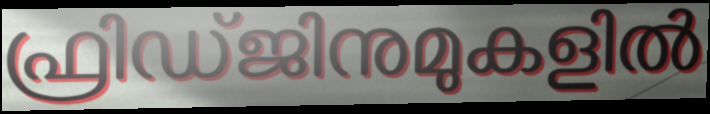
ഫ്രിഡ്ജിനുമുകളിൽ